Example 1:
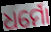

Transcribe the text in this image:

ଧର୍ମୋ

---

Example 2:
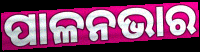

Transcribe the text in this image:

ପାଳନଭାର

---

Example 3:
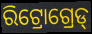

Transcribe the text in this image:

ରିଟ୍ରୋଗ୍ରେଡ୍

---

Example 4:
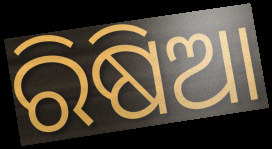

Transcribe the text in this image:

ରିଷିଆ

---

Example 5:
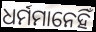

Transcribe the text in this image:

ଧର୍ମମାନେହିଁ